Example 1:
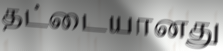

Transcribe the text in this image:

தட்டையானது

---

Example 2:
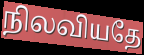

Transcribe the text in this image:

நிலவியதே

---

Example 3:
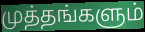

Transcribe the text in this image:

முத்தங்களும்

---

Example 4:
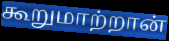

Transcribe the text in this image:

கூறுமாற்றான்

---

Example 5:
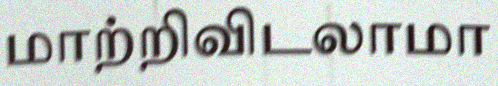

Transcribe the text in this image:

மாற்றிவிடலாமா